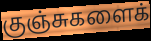
குஞ்சுகளைக்